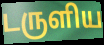
டருளிய